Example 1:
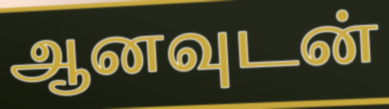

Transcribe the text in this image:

ஆனவுடன்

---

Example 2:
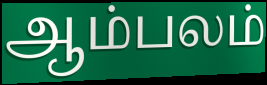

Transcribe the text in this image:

ஆம்பலம்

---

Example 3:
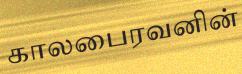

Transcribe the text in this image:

காலபைரவனின்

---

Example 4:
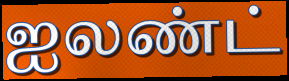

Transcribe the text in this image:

ஐலண்ட்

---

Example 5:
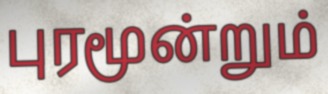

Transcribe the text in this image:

புரமூன்றும்